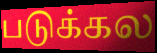
படுக்கல